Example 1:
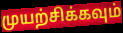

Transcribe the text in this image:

முயற்சிக்கவும்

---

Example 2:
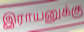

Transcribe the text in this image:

இராயனுக்கு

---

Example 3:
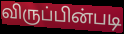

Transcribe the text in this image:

விருப்பின்படி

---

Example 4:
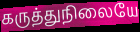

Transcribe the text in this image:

கருத்துநிலையே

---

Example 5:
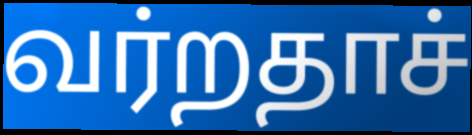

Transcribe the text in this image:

வர்றதாச்